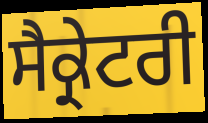
ਸੈਕ੍ਰੇਟਰੀ